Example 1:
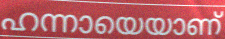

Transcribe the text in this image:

ഹന്നായെയാണ്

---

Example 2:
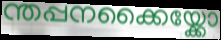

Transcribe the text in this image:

ന്തപ്പനക്കൈയ്ക്കോ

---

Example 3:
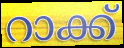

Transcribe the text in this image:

റാക്ക്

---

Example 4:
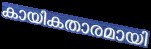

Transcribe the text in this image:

കായികതാരമായി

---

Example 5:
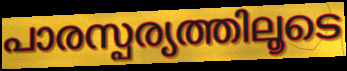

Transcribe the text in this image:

പാരസ്പര്യത്തിലൂടെ